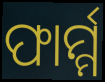
ଫାର୍ମ୍ମ